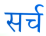
सर्च